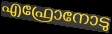
എഫ്രോനോടു